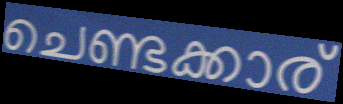
ചെണ്ടക്കാര്